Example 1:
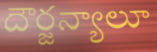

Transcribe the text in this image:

దౌర్జన్యాలూ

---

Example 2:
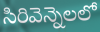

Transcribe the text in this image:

సిరివెన్నెలలో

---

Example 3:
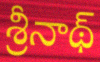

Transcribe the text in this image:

శ్రీనాథ్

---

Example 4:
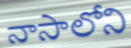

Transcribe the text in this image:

నాసాలోని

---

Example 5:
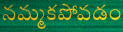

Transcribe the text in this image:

నమ్మకపోవడం